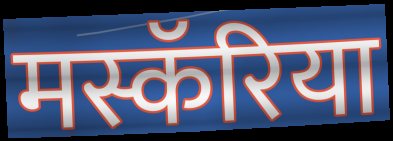
मस्कॅरिया